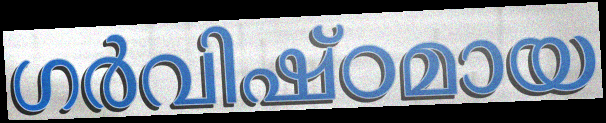
ഗർവിഷ്ഠമായ